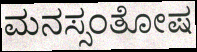
ಮನಸ್ಸಂತೋಷ